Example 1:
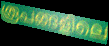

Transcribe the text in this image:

രൂപങ്ങളിലെ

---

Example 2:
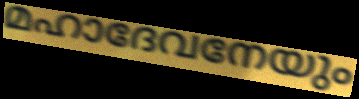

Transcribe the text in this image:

മഹാദേവനേയും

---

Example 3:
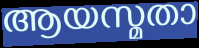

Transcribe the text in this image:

ആയസ്മതാ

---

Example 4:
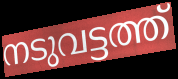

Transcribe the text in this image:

നടുവട്ടത്ത്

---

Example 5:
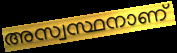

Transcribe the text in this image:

അസ്വസ്ഥനാണ്